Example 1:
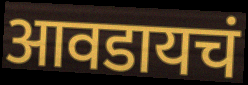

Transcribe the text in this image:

आवडायचं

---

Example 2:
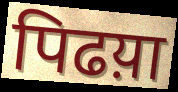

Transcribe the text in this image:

पिढय़ा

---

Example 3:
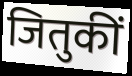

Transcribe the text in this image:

जितुकीं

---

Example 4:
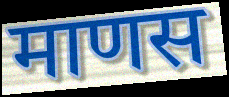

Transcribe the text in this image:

माणस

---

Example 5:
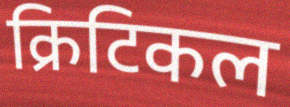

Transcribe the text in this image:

क्रिटिकल